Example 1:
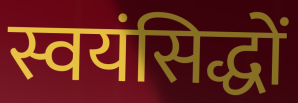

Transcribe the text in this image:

स्वयंसिद्धों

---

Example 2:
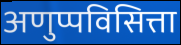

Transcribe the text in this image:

अणुप्पविसित्ता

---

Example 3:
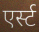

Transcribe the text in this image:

एर्स्ट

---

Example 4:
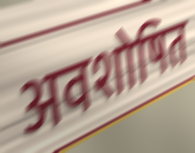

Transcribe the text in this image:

अवशोषित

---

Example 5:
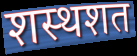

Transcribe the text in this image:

शस्थशत